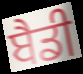
ਬੈਡੀ